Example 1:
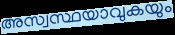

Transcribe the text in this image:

അസ്വസ്ഥയാവുകയും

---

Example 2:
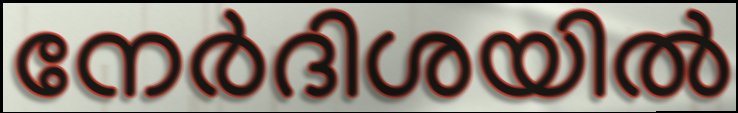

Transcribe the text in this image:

നേർദിശയിൽ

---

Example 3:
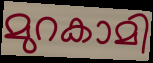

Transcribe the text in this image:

മുറകാമി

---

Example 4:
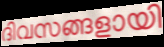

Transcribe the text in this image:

ദിവസങ്ങളായി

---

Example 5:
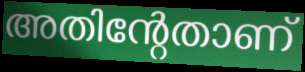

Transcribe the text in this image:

അതിന്റേതാണ്